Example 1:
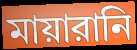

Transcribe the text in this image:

মায়ারানি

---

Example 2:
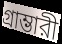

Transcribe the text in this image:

গ্রাম্ভারী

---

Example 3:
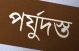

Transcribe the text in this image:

পর্যুদস্ত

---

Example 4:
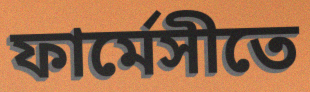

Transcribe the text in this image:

ফার্মেসীতে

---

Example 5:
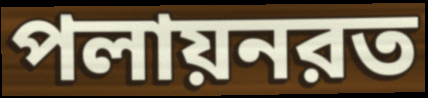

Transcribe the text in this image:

পলায়নরত